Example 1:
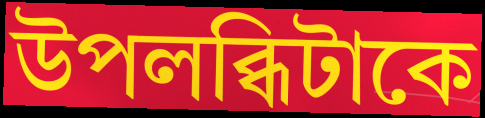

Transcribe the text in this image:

উপলব্ধিটাকে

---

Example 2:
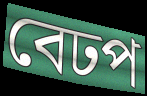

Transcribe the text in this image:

বেঢপ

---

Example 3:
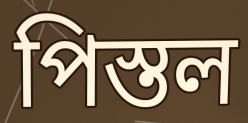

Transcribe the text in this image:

পিস্তল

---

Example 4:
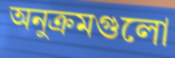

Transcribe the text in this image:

অনুক্রমগুলো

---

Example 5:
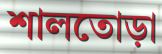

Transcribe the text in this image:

শালতোড়া